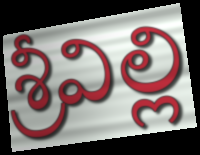
శ్రీవిల్లి